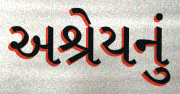
અશ્રેયનું